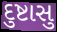
દુષ્ટાસુ